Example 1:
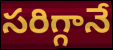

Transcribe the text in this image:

సరిగ్గానే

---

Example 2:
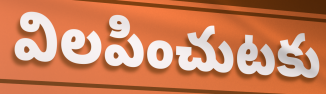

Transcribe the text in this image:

విలపించుటకు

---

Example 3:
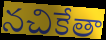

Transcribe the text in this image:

నచికేతా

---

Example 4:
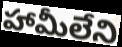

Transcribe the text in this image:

హామీలేని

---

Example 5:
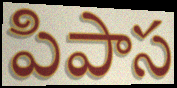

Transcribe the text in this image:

పిపాస